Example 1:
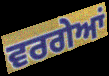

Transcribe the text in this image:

ਵਰਗੇਆਂ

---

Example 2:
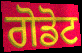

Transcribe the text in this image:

ਗੋਡੋਟ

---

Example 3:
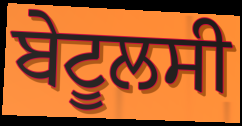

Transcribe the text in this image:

ਬੇਟੂਲਸੀ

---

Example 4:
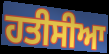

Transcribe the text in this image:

ਹਤੀਸੀਆ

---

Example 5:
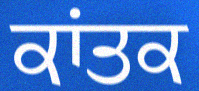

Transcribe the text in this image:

ਕਾਂਤਕ